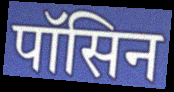
पॉसिन